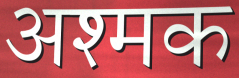
अश्मक